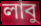
লাবু